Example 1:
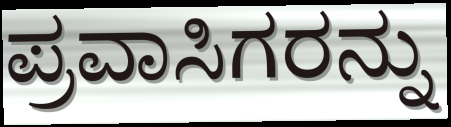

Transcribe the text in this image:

ಪ್ರವಾಸಿಗರನ್ನು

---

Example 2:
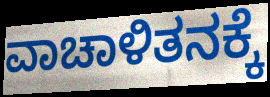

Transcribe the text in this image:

ವಾಚಾಳಿತನಕ್ಕೆ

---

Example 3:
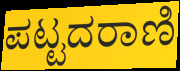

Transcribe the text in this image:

ಪಟ್ಟದರಾಣಿ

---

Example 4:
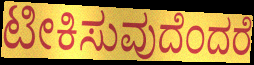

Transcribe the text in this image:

ಟೀಕಿಸುವುದೆಂದರೆ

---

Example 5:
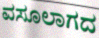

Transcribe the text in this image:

ವಸೂಲಾಗದ